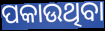
ପକାଉଥିବା